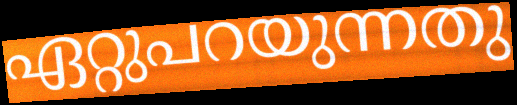
ഏറ്റുപറയുന്നതു